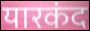
यारकंद